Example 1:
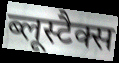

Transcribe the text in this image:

ब्लूस्टैक्स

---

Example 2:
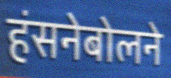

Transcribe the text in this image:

हंसनेबोलने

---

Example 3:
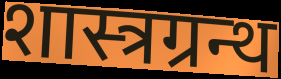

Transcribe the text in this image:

शास्त्रग्रन्थ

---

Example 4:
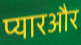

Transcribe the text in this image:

प्यारऔर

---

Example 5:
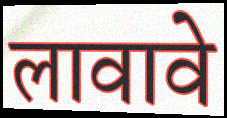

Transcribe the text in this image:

लावावे